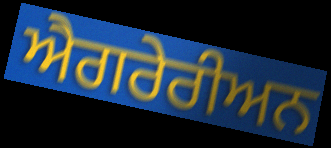
ਐਗਰੇਰੀਅਨ